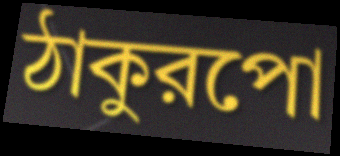
ঠাকুরপো